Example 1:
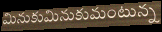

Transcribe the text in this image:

మినుకుమినుకుమంటున్న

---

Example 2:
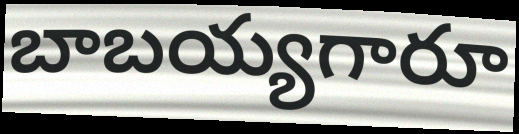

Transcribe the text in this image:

బాబయ్యగారూ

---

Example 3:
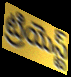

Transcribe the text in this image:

ట్రియెస్ట్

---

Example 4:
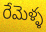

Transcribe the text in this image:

రేమెళ్ళ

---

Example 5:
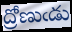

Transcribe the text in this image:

ద్రోణుఁడు